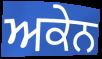
ਅਕੇਨ